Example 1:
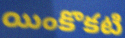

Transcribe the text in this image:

యింకొకటి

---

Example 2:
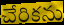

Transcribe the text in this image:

చేరికను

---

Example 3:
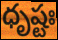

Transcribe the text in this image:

ధృష్టః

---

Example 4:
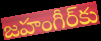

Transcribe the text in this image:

జహంగీర్‌కు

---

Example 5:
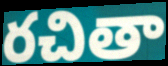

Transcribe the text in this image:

రచితా